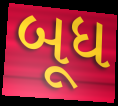
બૂધ